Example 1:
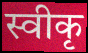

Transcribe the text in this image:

स्वीकृ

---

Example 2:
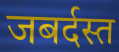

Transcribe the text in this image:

जबर्दस्त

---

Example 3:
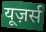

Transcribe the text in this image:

यूज़र्स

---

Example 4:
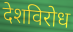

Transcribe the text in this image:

देशविरोध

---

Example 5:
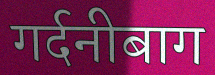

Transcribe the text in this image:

गर्दनीबाग